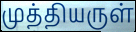
முத்தியருள்